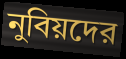
নুবিয়দের